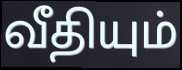
வீதியும்